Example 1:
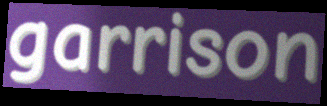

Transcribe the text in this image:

garrison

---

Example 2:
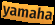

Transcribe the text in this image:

yamaha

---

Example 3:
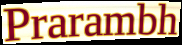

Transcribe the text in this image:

Prarambh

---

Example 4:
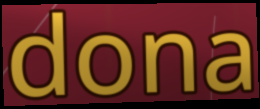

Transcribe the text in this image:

dona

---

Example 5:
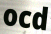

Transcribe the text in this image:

ocd